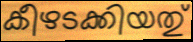
കീഴടക്കിയതു്